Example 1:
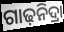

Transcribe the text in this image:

ଗାଢ଼ନିଦ୍ରା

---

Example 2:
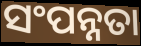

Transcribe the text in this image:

ସଂପନ୍ନତା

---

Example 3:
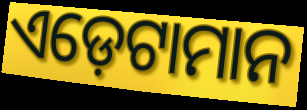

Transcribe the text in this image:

ଏଡ଼େଟାମାନ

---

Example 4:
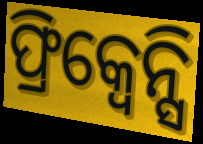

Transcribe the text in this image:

ଫ୍ରିକ୍ୱେନ୍ସି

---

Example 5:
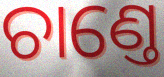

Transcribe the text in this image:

ଚାଣ୍ତେ